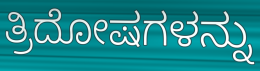
ತ್ರಿದೋಷಗಳನ್ನು